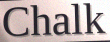
Chalk